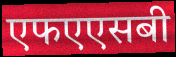
एफएएसबी